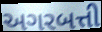
અગરબત્તી